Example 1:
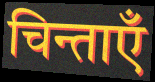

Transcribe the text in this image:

चिन्ताएँ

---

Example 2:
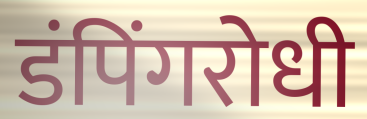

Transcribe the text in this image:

डंपिंगरोधी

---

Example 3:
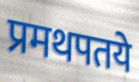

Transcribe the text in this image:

प्रमथपतये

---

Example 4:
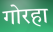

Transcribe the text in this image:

गोरहा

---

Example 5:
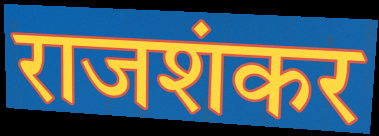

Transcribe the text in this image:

राजशंकर